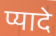
प्यादे